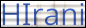
HIrani